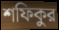
শফিকুর